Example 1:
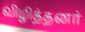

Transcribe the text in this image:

விழித்தனர்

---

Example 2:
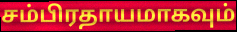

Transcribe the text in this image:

சம்பிரதாயமாகவும்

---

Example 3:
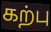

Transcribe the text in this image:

கற்பு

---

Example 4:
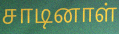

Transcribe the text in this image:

சாடினாள்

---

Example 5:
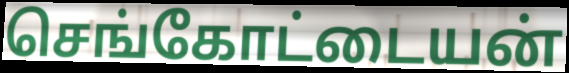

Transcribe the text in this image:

செங்கோட்டையன்